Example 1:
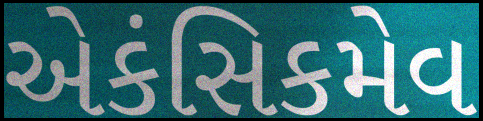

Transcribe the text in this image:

એકંસિકમેવ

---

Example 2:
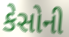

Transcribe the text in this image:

કેસોની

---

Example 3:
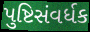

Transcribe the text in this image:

પુષ્ટિસંવર્ધક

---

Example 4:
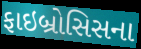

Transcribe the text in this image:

ફાઇબ્રોસિસના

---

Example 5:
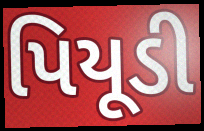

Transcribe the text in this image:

પિયૂડી